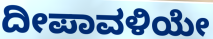
ದೀಪಾವಳಿಯೇ